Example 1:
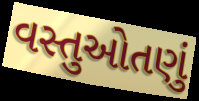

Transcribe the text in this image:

વસ્તુઓતણું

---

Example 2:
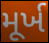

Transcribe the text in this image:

મૂર્ખ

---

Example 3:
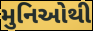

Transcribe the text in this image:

મુનિઓથી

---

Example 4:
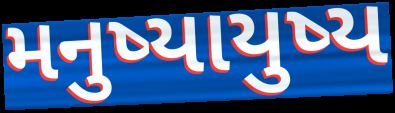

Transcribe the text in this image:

મનુષ્યાયુષ્ય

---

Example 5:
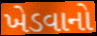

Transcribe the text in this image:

ખેડવાનો